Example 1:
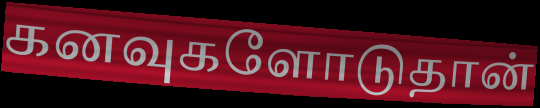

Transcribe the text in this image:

கனவுகளோடுதான்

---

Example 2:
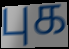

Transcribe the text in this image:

புக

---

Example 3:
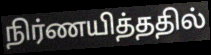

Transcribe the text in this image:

நிர்ணயித்ததில்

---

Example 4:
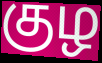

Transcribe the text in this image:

குழ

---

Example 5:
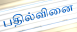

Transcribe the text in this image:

பதில்வினை